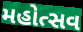
મહોત્સવ